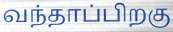
வந்தாப்பிறகு